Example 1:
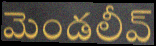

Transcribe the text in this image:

మెండలీవ్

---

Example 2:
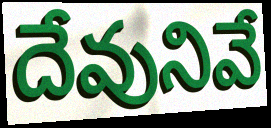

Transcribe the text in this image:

దేవునివే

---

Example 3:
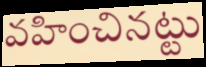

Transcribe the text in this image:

వహించినట్టు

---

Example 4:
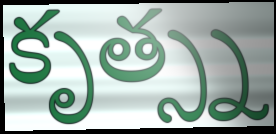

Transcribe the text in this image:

కృత్స్న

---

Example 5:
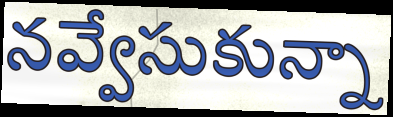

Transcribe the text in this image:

నవ్వేసుకున్నా